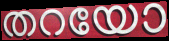
തറയോ